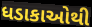
ધડાકાઓથી